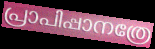
പ്രാപിപ്പാനത്രേ